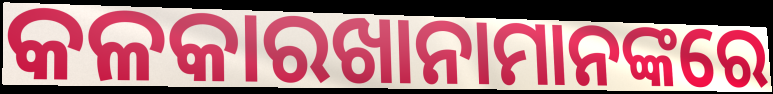
କଳକାରଖାନାମାନଙ୍କରେ